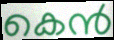
കെൻ